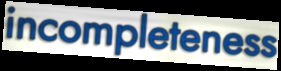
incompleteness